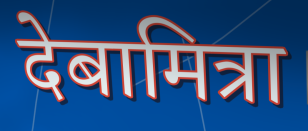
देबामित्रा